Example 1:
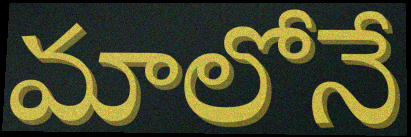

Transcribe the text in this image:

మాలోనే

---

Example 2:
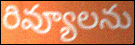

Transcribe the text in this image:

రివ్యూలను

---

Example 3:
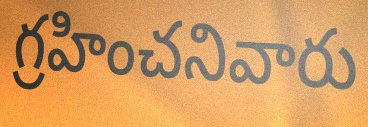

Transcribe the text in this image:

గ్రహించనివారు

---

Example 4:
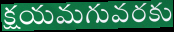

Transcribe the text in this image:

క్షయమగువరకు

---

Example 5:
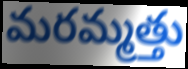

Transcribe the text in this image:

మరమ్మత్తు